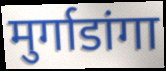
मुर्गाडांगा